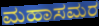
ಮಹಾಸಮರ